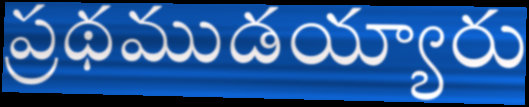
ప్రథముడయ్యారు